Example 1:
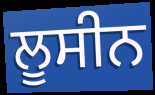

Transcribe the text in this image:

ਲੂਸੀਨ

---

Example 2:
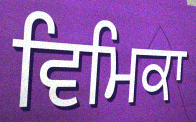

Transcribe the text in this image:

ਵਿਮਿਕਾ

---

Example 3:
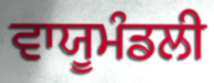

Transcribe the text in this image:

ਵਾਯੂਮੰਡਲੀ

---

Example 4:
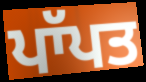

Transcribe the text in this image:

ਪਾੱਪਤ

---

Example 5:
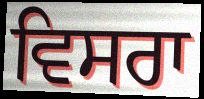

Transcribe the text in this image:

ਵਿਸਰਾ